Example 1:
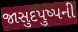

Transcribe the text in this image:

જાસુદપુષ્પની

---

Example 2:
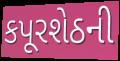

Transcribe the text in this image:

કપૂરશેઠની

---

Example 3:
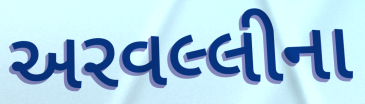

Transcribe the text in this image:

અરવલ્લીના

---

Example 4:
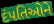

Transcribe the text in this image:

દંપતિઓને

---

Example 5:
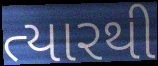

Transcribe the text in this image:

ત્યારથી